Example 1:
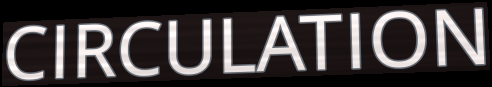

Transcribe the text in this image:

CIRCULATION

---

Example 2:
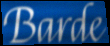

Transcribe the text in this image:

Barde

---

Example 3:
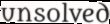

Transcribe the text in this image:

unsolved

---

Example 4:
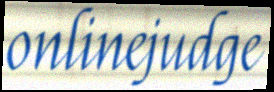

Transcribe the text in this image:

onlinejudge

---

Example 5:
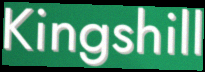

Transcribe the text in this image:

Kingshill